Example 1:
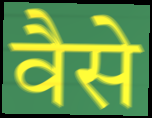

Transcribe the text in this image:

वैसे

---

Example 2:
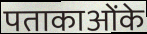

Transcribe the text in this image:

पताकाओंके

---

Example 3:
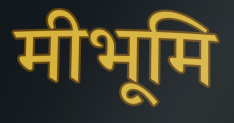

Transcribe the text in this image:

मीभूमि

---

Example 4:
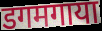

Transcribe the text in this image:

डगमगाया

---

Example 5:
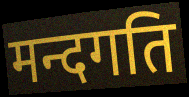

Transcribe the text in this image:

मन्दगति